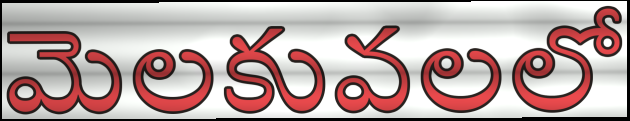
మెలకువలలో